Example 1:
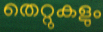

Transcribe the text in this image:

തെറ്റുകളും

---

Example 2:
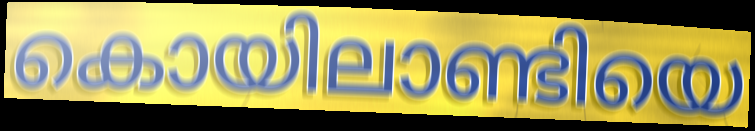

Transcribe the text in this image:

കൊയിലാണ്ടിയെ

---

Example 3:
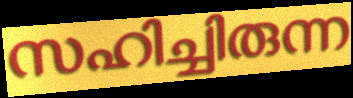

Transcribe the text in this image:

സഹിച്ചിരുന്ന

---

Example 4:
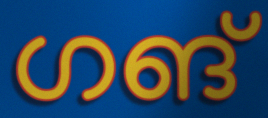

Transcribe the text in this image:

ഗങ്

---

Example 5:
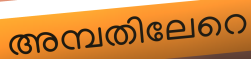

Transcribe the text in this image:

അമ്പതിലേറെ